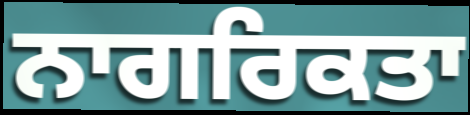
ਨਾਗਰਿਕਤਾ